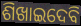
ଶିଖାଇଦେବି